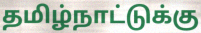
தமிழ்நாட்டுக்கு